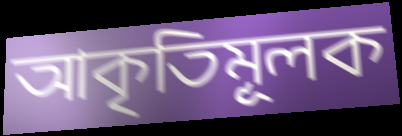
আকৃতিমূলক